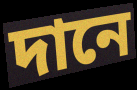
দানে